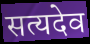
सत्‍यदेव